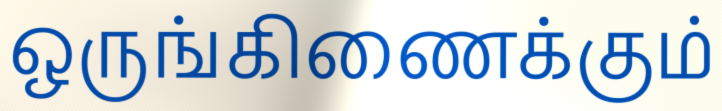
ஒருங்கிணைக்கும்